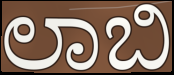
ಲಾಬಿ